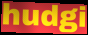
hudgi